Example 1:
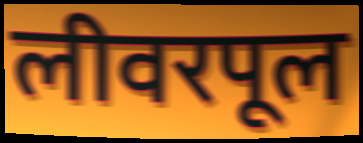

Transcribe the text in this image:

लीवरपूल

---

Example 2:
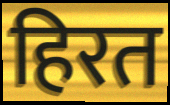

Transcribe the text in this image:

हिरत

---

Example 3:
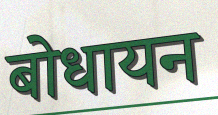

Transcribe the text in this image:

बोधायन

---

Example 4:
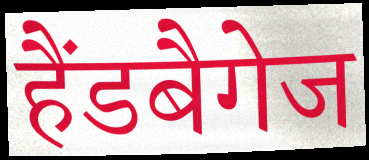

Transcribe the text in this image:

हैंडबैगेज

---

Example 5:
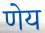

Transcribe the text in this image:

णेय